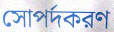
সোপর্দকরণ